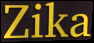
Zika